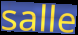
salle